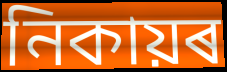
নিকায়ৰ